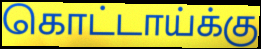
கொட்டாய்க்கு